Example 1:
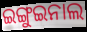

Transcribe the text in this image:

ଇଙ୍ଗୁଇନାଲ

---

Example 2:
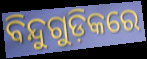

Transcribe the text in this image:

ବିନ୍ଦୁଗୁଡ଼ିକରେ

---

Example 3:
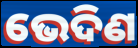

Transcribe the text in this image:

ଭେଦିଣ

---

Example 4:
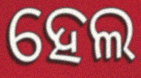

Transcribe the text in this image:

ହେଲ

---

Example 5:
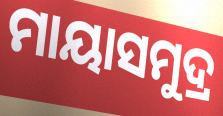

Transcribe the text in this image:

ମାୟାସମୁଦ୍ର